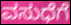
ವಸುಧೆಗೆ